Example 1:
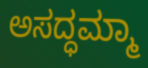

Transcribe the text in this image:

ಅಸದ್ಧಮ್ಮಾ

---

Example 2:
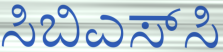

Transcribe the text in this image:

ಸಿಬಿಎಸ್‌ಸಿ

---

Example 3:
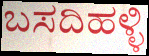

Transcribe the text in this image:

ಬಸದಿಹಳ್ಳಿ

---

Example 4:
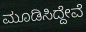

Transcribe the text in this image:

ಮೂಡಿಸಿದ್ದೇವೆ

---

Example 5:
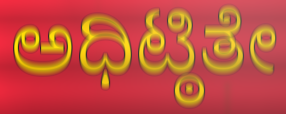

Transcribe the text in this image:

ಅಧಿಟ್ಠಿತೇ